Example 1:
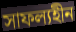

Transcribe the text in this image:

সাফল্যহীন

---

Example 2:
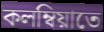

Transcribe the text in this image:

কলম্বিয়াতে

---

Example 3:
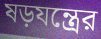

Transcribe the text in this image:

ষড়যন্ত্রের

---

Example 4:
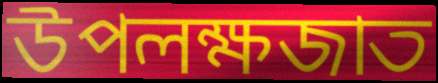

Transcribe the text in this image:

উপলক্ষজাত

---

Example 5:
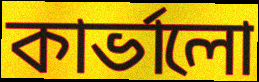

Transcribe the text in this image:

কার্ভালো